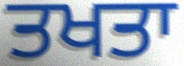
ਤਖਤਾ